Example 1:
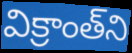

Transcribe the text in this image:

విక్రాంత్‌ని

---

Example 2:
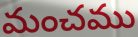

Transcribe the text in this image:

మంచము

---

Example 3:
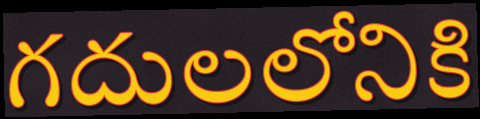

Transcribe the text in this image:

గదులలోనికి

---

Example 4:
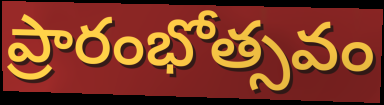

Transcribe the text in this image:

ప్రారంభోత్సవం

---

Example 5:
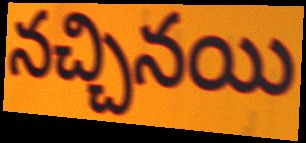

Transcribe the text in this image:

నచ్చినయి